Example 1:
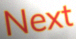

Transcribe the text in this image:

Next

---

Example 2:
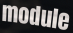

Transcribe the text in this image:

module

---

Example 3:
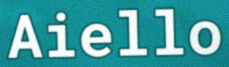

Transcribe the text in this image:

Aiello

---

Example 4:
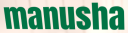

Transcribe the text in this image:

manusha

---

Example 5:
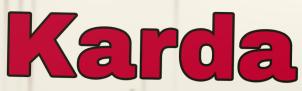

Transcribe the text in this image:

Karda